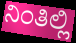
ನಿಂತಿಲ್ಲಿ